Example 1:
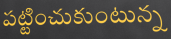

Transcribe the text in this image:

పట్టించుకుంటున్న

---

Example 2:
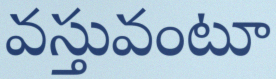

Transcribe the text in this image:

వస్తువంటూ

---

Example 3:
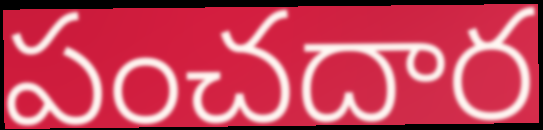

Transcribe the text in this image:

పంచదార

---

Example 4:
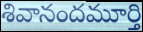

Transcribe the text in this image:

శివానందమూర్తి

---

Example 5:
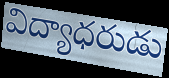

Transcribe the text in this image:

విద్యాధరుడు